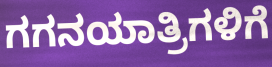
ಗಗನಯಾತ್ರಿಗಳಿಗೆ